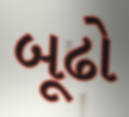
બૂઢો